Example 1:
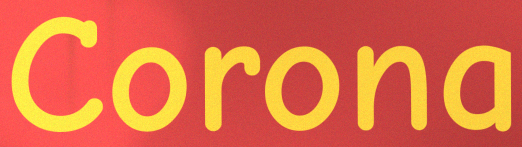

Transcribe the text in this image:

Corona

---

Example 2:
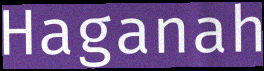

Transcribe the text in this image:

Haganah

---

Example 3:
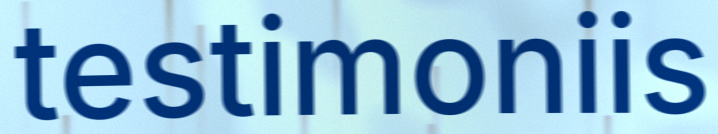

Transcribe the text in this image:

testimoniis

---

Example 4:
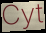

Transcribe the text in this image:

Cyt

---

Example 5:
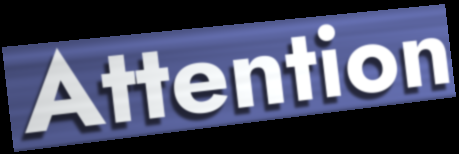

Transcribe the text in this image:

Attention